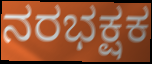
ನರಭಕ್ಷಕ